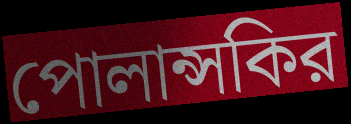
পোলান্সকির